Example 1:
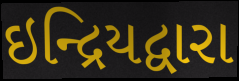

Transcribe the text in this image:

ઇન્દ્રિયદ્વારા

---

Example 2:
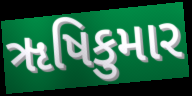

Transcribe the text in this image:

ૠષિકુમાર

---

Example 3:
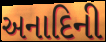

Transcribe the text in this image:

અનાદિની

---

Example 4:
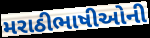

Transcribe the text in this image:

મરાઠીભાષીઓની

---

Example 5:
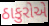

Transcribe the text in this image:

ઠાકુરોએ